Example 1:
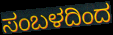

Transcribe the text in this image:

ಸಂಬಳದಿಂದ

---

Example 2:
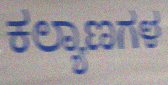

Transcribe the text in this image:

ಕಲ್ಯಾಣಗಳ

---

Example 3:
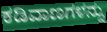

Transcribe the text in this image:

ಕಡಿವಾಣಗಳನ್ನು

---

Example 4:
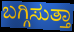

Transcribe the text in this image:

ಬಗ್ಗಿಸುತ್ತಾ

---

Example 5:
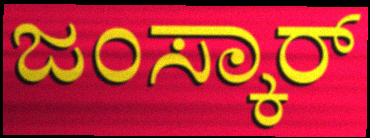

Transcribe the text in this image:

ಜಂಸ್ಕಾರ್